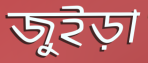
জুইড়া